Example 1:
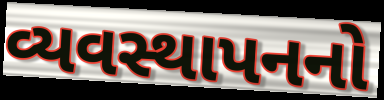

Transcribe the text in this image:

વ્યવસ્થાપનનો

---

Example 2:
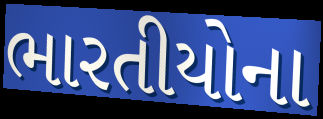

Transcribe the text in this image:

ભારતીયોના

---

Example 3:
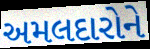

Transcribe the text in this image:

અમલદારોને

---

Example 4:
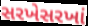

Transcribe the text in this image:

સરખેસરખાં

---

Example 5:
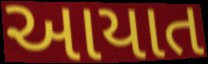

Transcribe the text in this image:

આયાત